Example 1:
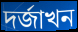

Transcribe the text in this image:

দৰ্জাখন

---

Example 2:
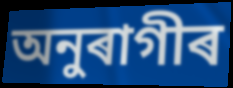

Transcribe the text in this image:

অনুৰাগীৰ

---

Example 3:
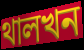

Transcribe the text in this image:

থালখন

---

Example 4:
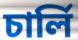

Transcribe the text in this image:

চাৰ্লি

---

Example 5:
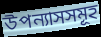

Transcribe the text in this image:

উপন্যাসসমূহ